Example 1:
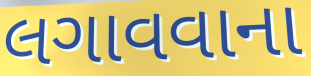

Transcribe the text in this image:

લગાવવાના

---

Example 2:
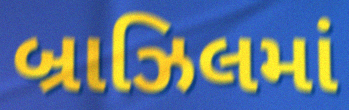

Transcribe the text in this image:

બ્રાઝિલમાં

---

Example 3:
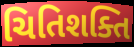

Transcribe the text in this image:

ચિતિશક્તિ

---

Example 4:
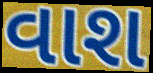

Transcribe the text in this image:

વાશ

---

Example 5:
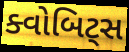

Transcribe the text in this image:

ક્વોબિટ્સ